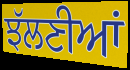
ਝੱਲਣੀਆਂ